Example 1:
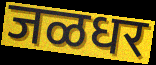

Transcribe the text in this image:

जळधर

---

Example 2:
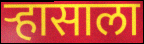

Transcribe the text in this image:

ऱ्हासाला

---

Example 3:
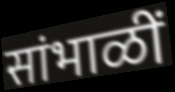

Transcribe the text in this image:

सांभाळीं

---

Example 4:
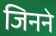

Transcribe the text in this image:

जिनने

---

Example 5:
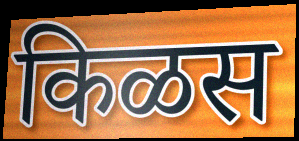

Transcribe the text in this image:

किळस